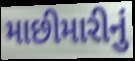
માછીમારીનું